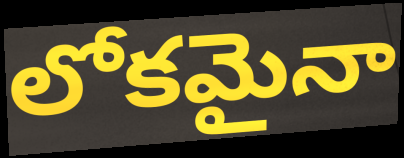
లోకమైనా